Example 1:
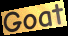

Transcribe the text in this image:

Goat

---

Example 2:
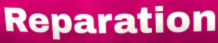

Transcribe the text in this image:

Reparation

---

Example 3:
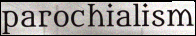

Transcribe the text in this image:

parochialism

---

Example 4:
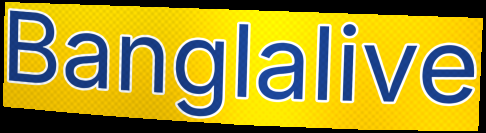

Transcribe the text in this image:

Banglalive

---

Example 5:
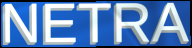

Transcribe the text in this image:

NETRA